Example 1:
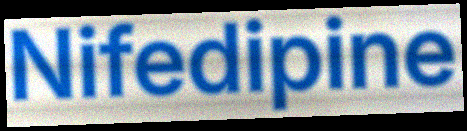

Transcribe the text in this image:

Nifedipine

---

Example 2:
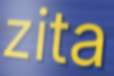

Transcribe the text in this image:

zita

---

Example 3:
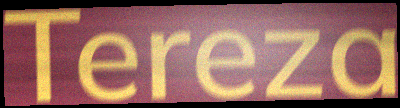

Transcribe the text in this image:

Tereza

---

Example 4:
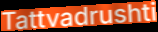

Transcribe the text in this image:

Tattvadrushti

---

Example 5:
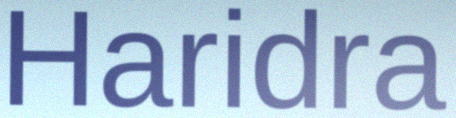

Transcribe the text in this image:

Haridra